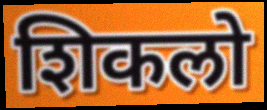
शिकलो